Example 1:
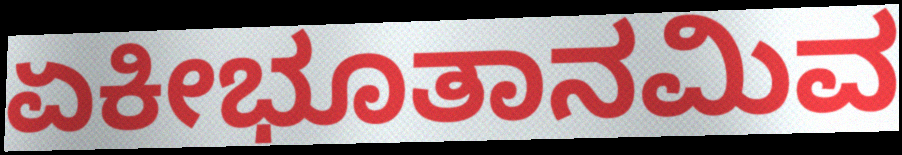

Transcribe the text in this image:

ಏಕೀಭೂತಾನಮಿವ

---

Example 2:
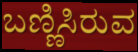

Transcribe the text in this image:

ಬಣ್ಣಿಸಿರುವ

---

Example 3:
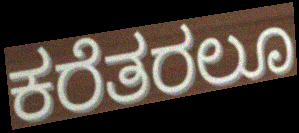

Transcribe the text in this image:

ಕರೆತರಲೂ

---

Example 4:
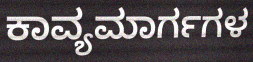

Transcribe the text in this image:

ಕಾವ್ಯಮಾರ್ಗಗಳ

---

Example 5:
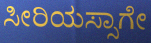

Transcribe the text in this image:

ಸೀರಿಯಸ್ಸಾಗೇ